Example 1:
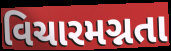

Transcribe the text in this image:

વિચારમગ્નતા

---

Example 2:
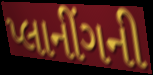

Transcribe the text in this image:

પ્લાનીંગની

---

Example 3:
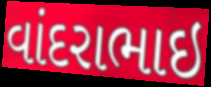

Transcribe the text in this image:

વાંદરાભાઇ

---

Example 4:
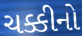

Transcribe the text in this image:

ચક્કીનો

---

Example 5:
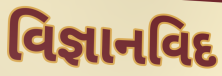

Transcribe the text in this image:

વિજ્ઞાનવિદ